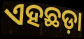
ଏହଛଡ଼ା